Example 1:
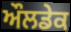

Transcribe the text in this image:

ਔਲਡੇਕ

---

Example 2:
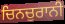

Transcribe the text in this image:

ਚਿਨਚੁਰਾਨੀ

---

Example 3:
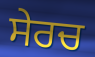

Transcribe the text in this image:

ਸੇਰਚ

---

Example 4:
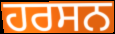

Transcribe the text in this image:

ਹਰਸਨ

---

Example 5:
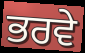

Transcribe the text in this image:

ਭਰਵੇ